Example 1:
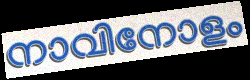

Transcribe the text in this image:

നാവിനോളം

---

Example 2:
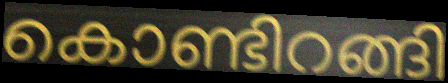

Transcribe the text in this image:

കൊണ്ടിറങ്ങി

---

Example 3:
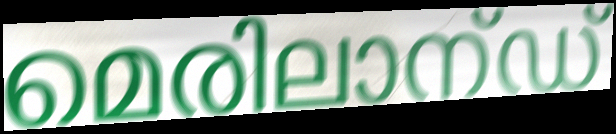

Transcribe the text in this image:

മെരിലാന്ഡ്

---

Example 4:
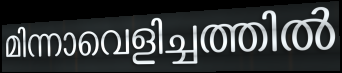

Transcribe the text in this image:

മിന്നാവെളിച്ചത്തിൽ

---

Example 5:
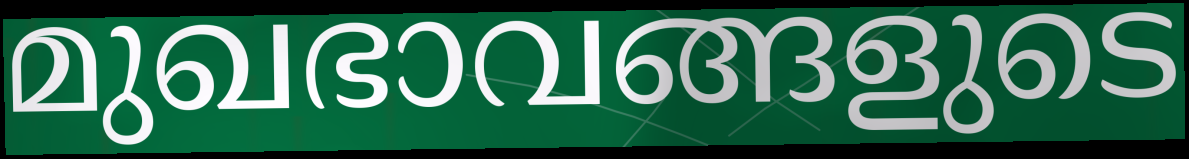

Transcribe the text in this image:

മുഖഭാവങ്ങളുടെ